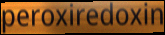
peroxiredoxin